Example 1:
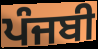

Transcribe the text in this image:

ਪੰਜਬੀ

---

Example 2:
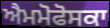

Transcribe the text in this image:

ਐਮਮੋਫੋਸਕਾ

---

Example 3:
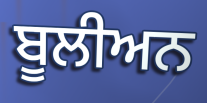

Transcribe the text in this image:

ਬੂਲੀਅਨ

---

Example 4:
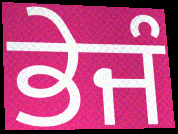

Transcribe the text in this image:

ਭੇਜੰ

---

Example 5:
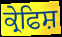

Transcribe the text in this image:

ਕ੍ਰੇਫਿਸ਼